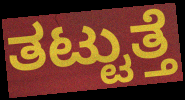
ತಟ್ಟುತ್ತೆ